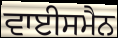
ਵਾਈਸਮੈਨ